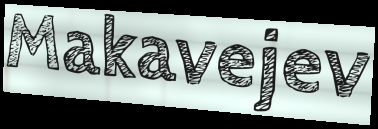
Makavejev